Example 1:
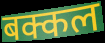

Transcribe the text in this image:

बक्कल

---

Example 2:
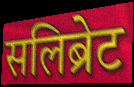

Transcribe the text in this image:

सलिब्रेट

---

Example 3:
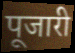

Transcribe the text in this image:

पूजारी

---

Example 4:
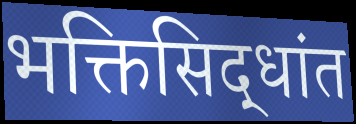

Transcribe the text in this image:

भक्तिसिद्धांत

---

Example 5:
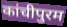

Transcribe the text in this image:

कांचीपुरम